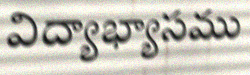
విద్యాభ్యాసము